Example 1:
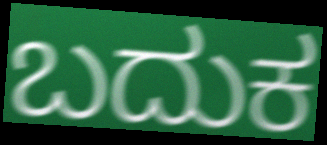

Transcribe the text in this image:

ಬದುಕ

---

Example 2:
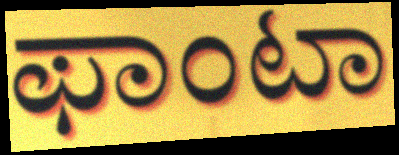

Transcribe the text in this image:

ಫಾಂಟಾ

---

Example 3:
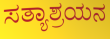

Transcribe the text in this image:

ಸತ್ಯಾಶ್ರಯನ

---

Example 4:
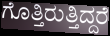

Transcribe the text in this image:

ಗೊತ್ತಿರುತ್ತಿದ್ದರೆ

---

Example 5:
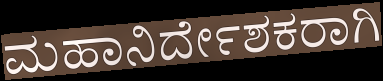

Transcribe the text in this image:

ಮಹಾನಿರ್ದೇಶಕರಾಗಿ